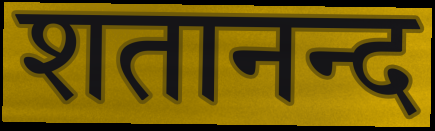
शतानन्द